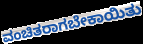
ವಂಚಿತರಾಗಬೇಕಾಯಿತು